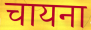
चायना